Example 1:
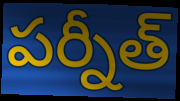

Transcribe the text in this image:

పర్నీత్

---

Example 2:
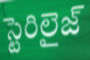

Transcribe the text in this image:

స్టెరిలైజ్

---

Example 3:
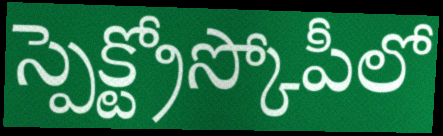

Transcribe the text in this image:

స్పెక్ట్రోస్కోపీలో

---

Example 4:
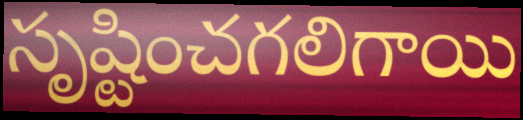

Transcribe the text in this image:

సృష్టించగలిగాయి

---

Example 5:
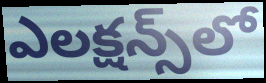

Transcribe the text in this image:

ఎలక్షన్స్‌లో